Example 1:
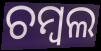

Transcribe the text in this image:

ଚମ୍ବଲ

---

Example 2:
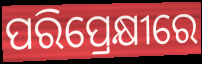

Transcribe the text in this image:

ପରିପ୍ରେକ୍ଷୀରେ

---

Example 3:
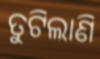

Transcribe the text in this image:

ତୁଟିଲାଣି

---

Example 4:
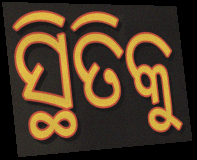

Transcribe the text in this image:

ସ୍ଥିତିକୁ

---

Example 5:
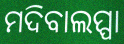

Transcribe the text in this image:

ମଦିବାଲପ୍ପା